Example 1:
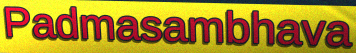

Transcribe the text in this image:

Padmasambhava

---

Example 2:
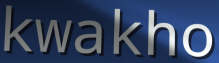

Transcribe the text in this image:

kwakho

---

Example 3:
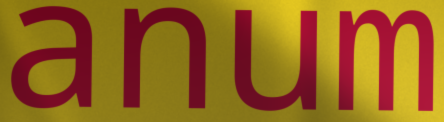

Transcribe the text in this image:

anum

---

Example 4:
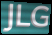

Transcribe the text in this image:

JLG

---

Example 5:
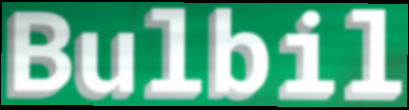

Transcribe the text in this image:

Bulbil